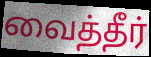
வைத்தீர்